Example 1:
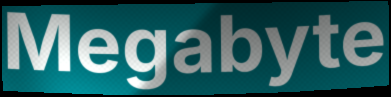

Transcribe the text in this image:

Megabyte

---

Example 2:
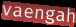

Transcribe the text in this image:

vaengah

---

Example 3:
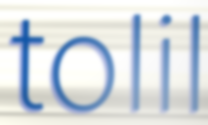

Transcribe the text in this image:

tolil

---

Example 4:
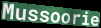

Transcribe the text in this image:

Mussoorie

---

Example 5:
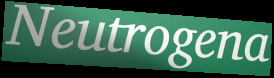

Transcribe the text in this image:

Neutrogena